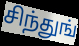
சிந்துங்